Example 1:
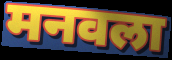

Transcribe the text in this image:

मनवला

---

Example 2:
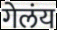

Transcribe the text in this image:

गेलंय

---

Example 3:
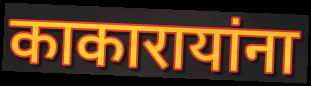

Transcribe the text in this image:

काकारायांना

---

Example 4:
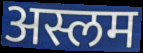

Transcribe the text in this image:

अस्लम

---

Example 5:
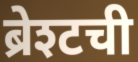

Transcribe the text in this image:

ब्रेश्टची